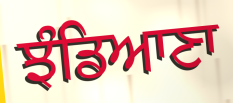
ਝੰਡਿਆਣਾ